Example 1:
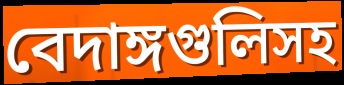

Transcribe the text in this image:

বেদাঙ্গগুলিসহ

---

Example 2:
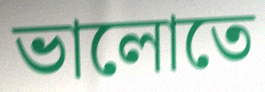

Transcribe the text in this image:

ভালোতে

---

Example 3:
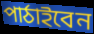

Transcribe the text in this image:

পাঠাইবেন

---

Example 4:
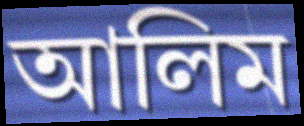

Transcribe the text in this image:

আলিম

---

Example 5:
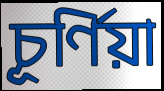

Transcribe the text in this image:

চূর্ণিয়া